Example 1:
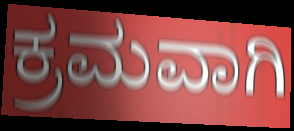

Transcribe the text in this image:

ಕ್ರಮವಾಗಿ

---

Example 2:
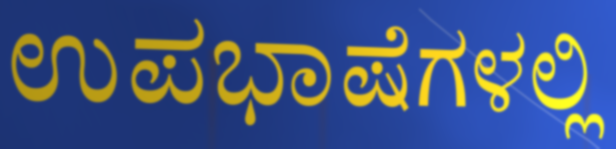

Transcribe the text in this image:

ಉಪಭಾಷೆಗಳಲ್ಲಿ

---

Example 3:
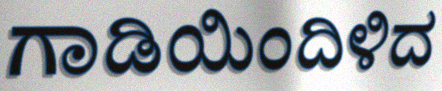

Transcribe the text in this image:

ಗಾಡಿಯಿಂದಿಳಿದ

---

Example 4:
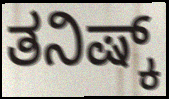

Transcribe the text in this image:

ತನಿಷ್ಕ್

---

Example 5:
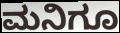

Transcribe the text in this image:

ಮನಿಗೂ